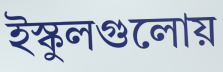
ইস্কুলগুলোয়